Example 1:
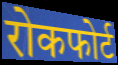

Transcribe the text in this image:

रोकफोर्ट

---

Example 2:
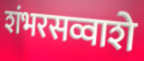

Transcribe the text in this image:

शंभरसव्वाशे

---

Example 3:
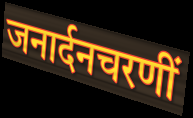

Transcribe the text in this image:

जनार्दनचरणीं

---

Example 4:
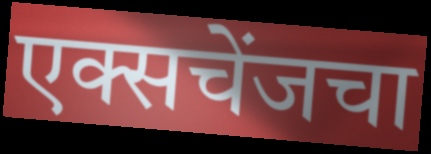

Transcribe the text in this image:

एक्सचेंजचा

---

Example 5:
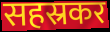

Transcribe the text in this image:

सहस्रकर